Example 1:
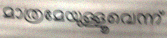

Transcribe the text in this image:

മാത്രമേയുള്ളൂവെന്ന്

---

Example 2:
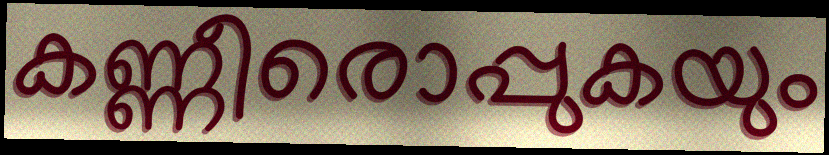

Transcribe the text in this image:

കണ്ണീരൊപ്പുകയും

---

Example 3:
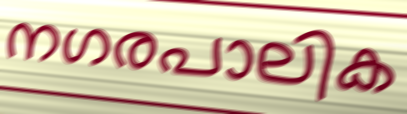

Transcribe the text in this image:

നഗരപാലിക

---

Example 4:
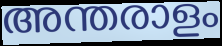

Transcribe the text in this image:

അന്തരാളം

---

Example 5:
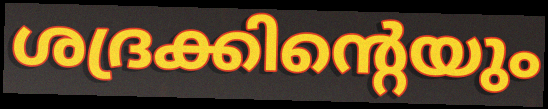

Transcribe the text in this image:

ശദ്രക്കിന്റെയും